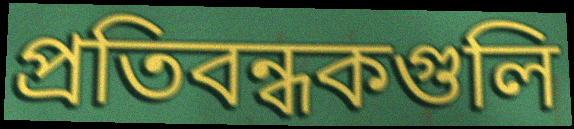
প্রতিবন্ধকগুলি